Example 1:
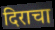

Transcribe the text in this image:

दिराचा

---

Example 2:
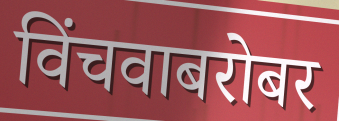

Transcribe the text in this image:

विंचवाबरोबर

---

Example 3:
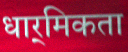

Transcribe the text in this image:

धार्मिकता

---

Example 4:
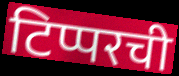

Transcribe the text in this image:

टिप्परची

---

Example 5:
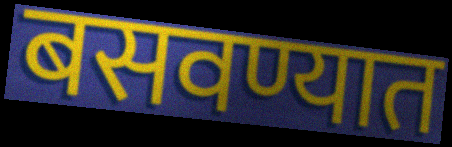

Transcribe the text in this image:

बसवण्यात